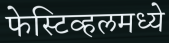
फेस्टिव्हलमध्ये